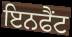
ਇਨਫੈਂਟ